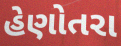
હેણોતરા